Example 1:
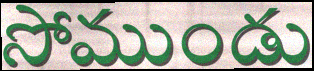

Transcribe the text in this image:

సోముండు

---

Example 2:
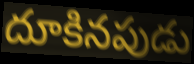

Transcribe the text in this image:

దూకినపుడు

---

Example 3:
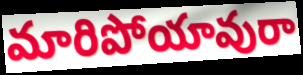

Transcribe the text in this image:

మారిపోయావురా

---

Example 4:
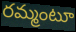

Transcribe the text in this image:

రమ్మంటూ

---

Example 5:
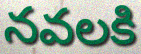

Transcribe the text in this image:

నవలకి